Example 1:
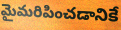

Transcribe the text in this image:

మైమరిపించడానికే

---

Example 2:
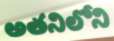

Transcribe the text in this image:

అతనిలోని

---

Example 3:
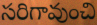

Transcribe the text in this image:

సరిగావుంచి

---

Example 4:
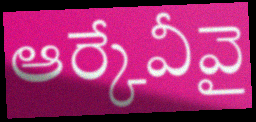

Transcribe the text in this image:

ఆర్కేవీవై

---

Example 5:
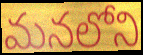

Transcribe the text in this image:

మనలోని